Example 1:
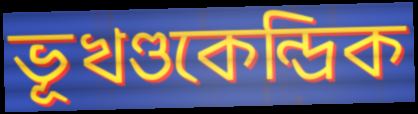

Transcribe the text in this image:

ভূখণ্ডকেন্দ্রিক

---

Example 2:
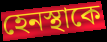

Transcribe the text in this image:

হেনস্থাকে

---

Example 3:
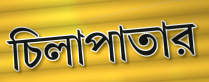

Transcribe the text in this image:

চিলাপাতার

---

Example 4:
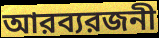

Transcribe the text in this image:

আরব্যরজনী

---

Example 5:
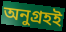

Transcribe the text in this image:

অনুগ্রহই